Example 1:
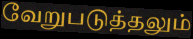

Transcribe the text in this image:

வேறுபடுத்தலும்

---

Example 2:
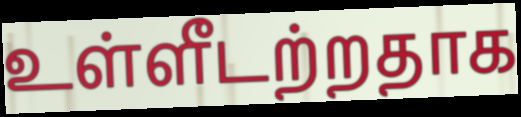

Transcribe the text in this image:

உள்ளீடற்றதாக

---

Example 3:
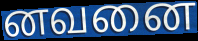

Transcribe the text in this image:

னவனை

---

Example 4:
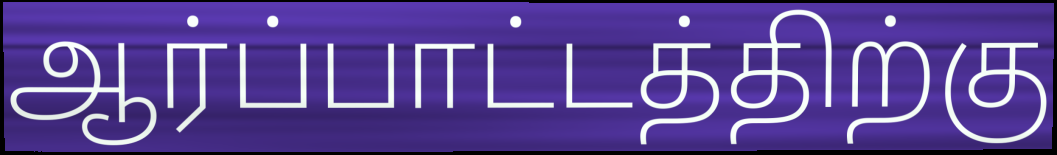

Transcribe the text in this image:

ஆர்ப்பாட்டத்திற்கு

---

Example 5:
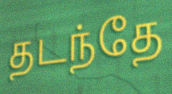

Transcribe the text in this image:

தடந்தே